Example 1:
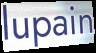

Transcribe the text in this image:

lupain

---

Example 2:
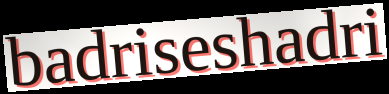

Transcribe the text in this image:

badriseshadri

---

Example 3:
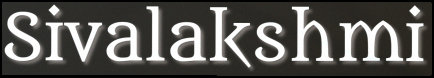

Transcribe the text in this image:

Sivalakshmi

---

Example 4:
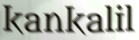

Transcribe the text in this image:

kankalil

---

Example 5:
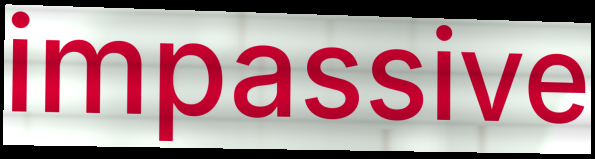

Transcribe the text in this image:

impassive